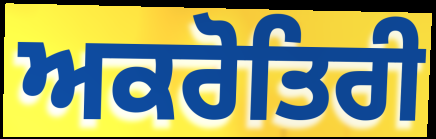
ਅਕਰੋਤਿਰੀ